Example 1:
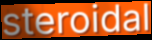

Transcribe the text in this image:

steroidal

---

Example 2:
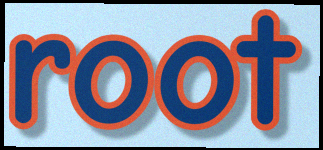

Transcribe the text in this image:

root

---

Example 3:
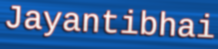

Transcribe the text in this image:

Jayantibhai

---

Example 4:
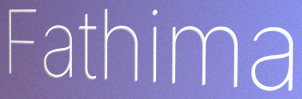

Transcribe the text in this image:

Fathima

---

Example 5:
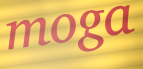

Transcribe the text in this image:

moga